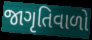
જાગૃતિવાળો